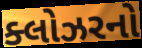
ક્લોઝરનો